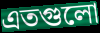
এতগুলো